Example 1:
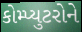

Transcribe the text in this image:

કોમ્પ્યુટરોને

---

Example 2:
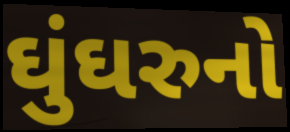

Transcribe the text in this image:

ઘુંઘરુનો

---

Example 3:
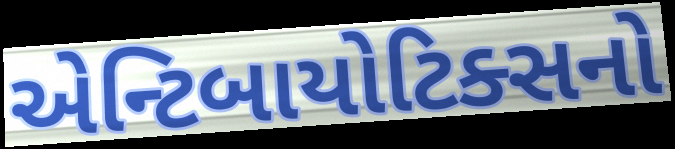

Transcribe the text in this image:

એન્ટિબાયોટિક્સનો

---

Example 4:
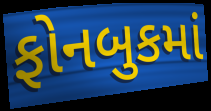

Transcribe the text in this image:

ફોનબુકમાં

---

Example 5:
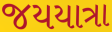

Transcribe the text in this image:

જયયાત્રા